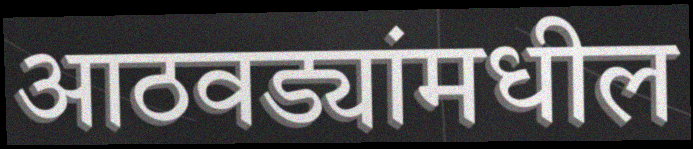
आठवड्यांमधील